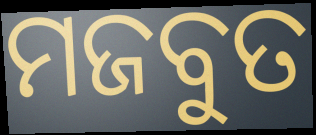
ମଜବୁତ